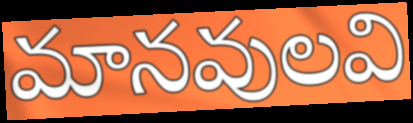
మానవులవి